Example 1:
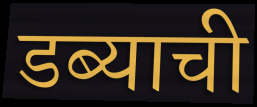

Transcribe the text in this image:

डब्याची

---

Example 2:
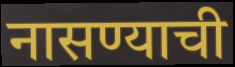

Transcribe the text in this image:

नासण्याची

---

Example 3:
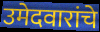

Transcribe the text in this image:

उमेदवारांचे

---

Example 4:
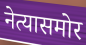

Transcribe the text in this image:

नेत्यासमोर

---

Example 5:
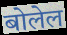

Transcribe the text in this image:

बोलेल